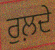
ਰੁਲ਼ਦੇ